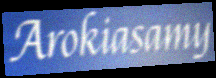
Arokiasamy